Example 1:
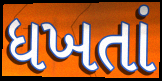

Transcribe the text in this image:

ધખતાં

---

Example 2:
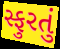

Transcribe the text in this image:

સ્ફુરતું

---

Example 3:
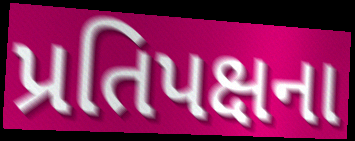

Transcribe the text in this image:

પ્રતિપક્ષના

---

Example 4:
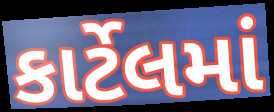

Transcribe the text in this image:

કાર્ટેલમાં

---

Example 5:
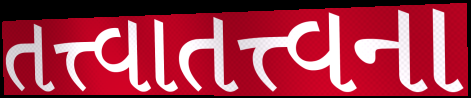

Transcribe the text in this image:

તત્ત્વાતત્ત્વના